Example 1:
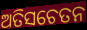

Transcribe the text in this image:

ଅତିସଚେତନ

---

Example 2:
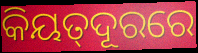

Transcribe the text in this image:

କିୟତ୍‌ଦୂରରେ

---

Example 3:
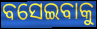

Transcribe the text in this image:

ବସେଇବାକୁ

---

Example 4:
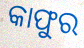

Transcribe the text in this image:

କାଫୁର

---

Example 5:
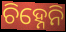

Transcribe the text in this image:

ଚିହ୍ନେନି